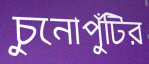
চুনোপুঁটির